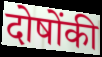
दोषोंकी